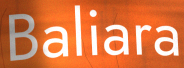
Baliara